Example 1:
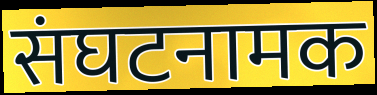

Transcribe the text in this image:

संघटनामक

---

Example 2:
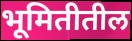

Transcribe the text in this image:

भूमितीतील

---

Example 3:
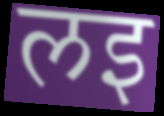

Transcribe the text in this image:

लइ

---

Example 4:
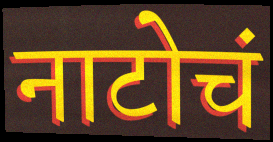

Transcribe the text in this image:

नाटोचं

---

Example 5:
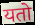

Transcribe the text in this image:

यतो